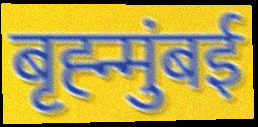
बृह्न्मुंबई